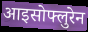
आइसोफ्लुरेन